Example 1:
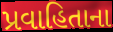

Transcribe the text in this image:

પ્રવાહિતાના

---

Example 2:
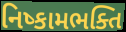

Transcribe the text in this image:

નિષ્કામભક્તિ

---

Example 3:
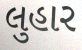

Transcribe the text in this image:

લુહાર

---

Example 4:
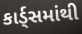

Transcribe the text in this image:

કાર્ડ્સમાંથી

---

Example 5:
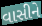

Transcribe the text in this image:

વાસીને